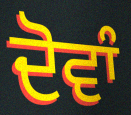
ਦੋਵਾੰ